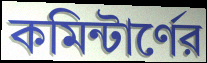
কমিন্টার্ণের